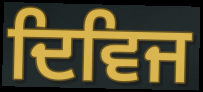
ਦਿਵਿਜ